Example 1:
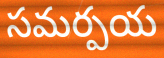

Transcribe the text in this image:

సమర్పయ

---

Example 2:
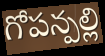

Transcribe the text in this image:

గోపన్పల్లి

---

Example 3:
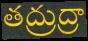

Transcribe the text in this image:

తద్రుద్రా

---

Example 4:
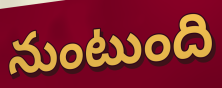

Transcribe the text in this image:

నుంటుంది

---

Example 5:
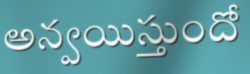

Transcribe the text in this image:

అన్వయిస్తుందో